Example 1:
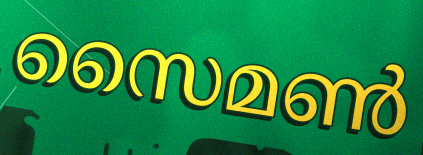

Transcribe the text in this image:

സൈമൺ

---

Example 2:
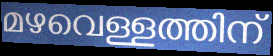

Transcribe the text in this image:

മഴവെള്ളത്തിന്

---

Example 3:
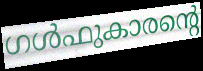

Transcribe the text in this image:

ഗൾഫുകാരന്റെ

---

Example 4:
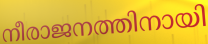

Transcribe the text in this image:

നീരാജനത്തിനായി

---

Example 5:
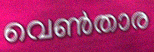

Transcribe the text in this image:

വെൺതാര